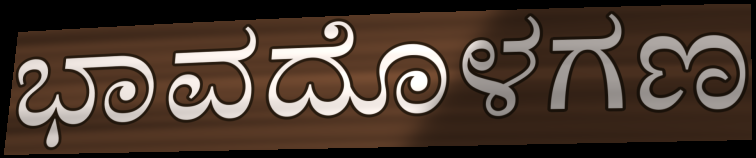
ಭಾವದೊಳಗಣ